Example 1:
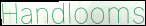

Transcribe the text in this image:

Handlooms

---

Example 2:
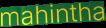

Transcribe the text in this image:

mahintha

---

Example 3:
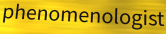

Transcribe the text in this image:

phenomenologist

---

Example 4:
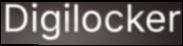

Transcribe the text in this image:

Digilocker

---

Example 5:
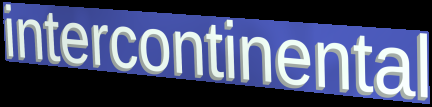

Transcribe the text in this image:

intercontinental